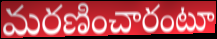
మరణించారంటూ